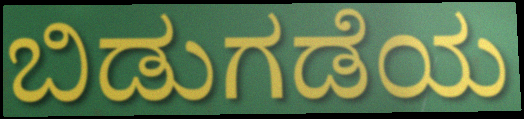
ಬಿಡುಗಡೆಯ